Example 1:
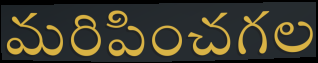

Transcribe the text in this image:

మరిపించగల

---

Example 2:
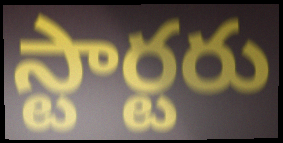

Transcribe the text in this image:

స్టార్టరు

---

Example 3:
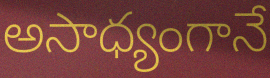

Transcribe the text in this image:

అసాధ్యంగానే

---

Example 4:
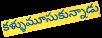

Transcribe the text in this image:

కళ్ళుమూసుకున్నాడు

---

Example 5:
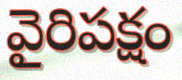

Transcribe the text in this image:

వైరిపక్షం